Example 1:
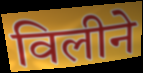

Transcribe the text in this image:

विलीने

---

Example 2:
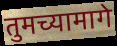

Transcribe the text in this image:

तुमच्यामागे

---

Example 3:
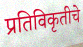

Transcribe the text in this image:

प्रतिविकृतीचे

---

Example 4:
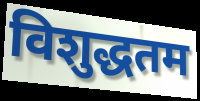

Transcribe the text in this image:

विशुद्धतम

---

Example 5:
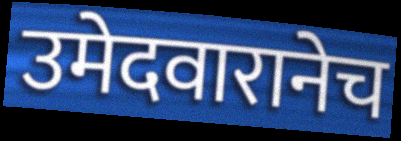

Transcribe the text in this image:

उमेदवारानेच